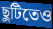
ছুটিতেও